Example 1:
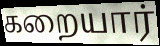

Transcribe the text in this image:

கறையார்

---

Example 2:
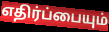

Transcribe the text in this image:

எதிர்ப்பையும்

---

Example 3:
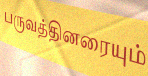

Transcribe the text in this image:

பருவத்தினரையும்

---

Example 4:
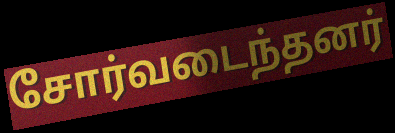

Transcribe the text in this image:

சோர்வடைந்தனர்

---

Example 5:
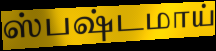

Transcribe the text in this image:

ஸ்பஷ்டமாய்